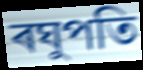
ৰঘুপতি